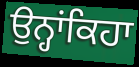
ਉਨ੍ਹਾਂਕਿਹਾ